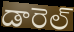
డారెల్